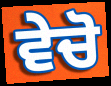
ਵੇਚੋ